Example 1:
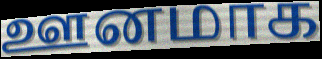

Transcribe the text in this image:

ஊனமாக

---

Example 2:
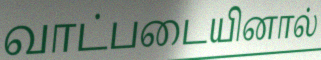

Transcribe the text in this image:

வாட்படையினால்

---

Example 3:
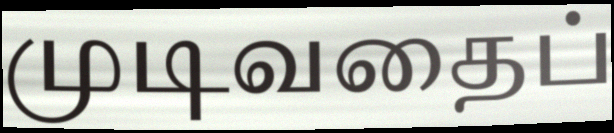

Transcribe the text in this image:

முடிவதைப்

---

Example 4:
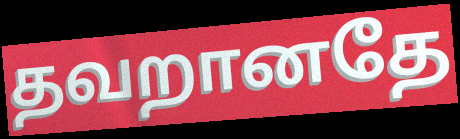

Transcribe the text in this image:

தவறானதே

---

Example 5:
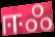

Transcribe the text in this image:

ஈஃ